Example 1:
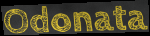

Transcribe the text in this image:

Odonata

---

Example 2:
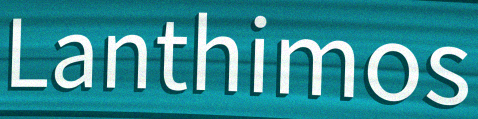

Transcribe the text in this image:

Lanthimos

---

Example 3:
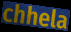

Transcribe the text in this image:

chhela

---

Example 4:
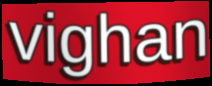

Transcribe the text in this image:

vighan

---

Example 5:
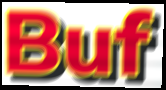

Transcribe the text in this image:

Buf